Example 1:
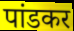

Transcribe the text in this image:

पांडकर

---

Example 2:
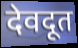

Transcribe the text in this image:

देवदूत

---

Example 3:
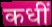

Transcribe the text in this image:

कधीं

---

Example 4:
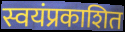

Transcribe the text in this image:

स्वयंप्रकाशित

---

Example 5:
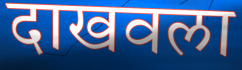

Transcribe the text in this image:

दाखवला